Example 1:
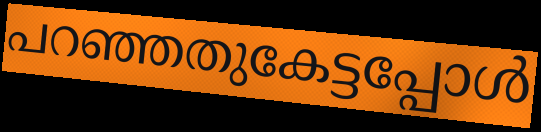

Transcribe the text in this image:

പറഞ്ഞതുകേട്ടപ്പോൾ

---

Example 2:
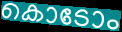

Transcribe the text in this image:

കൊടോം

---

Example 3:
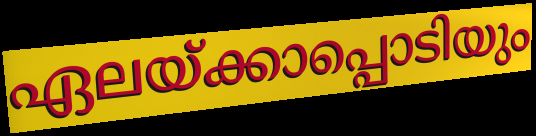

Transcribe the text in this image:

ഏലയ്ക്കാപ്പൊടിയും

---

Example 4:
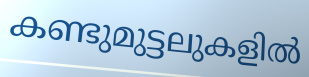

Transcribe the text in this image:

കണ്ടുമുട്ടലുകളിൽ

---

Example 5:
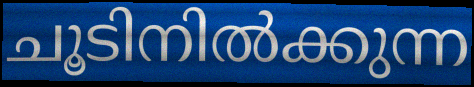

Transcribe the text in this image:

ചൂടിനിൽക്കുന്ന